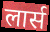
लार्स